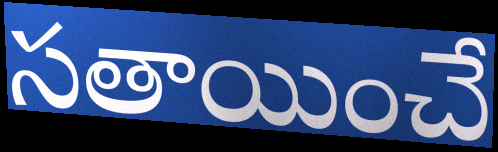
సతాయించే